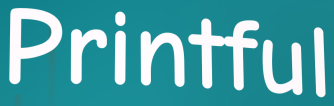
Printful